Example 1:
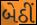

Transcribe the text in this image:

બેઠીં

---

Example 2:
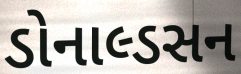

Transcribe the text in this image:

ડોનાલ્ડસન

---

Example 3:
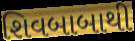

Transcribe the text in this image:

શિવબાબાથી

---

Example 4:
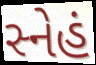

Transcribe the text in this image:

સ્નેહં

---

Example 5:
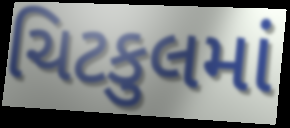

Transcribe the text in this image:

ચિટકુલમાં